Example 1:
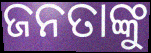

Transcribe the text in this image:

ଜନତାଙ୍କୁ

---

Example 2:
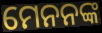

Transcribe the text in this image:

ମେନନଙ୍କ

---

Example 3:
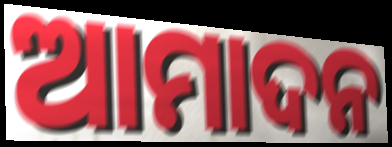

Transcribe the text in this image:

ଆମାଦନ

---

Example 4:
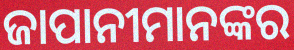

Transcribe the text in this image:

ଜାପାନୀମାନଙ୍କର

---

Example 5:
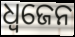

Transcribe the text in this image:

ଧ୍ଵଜେନ